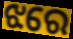
ଝରେ